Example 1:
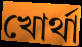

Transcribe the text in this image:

খোৰ্থা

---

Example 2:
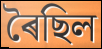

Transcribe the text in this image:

ৰৈছিল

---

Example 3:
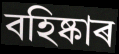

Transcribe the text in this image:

বহিষ্কাৰ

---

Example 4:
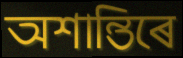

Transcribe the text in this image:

অশান্তিৰে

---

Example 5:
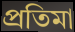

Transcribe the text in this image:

প্ৰতিমা